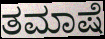
ತಮಾಷೆ